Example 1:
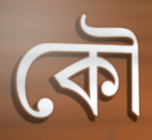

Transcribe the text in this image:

কৌ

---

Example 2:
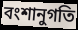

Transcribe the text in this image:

বংশানুগতি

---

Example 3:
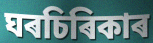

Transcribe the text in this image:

ঘৰচিৰিকাৰ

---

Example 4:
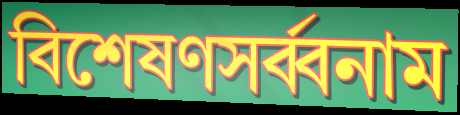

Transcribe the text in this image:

বিশেষণসৰ্ব্বনাম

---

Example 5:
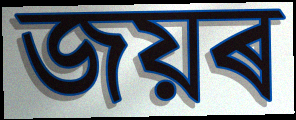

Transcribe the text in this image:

জয়ৰ